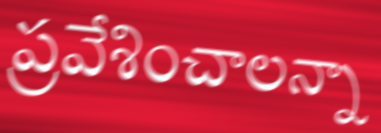
ప్రవేశించాలన్నా